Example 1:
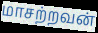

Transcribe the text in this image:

மாசற்றவன்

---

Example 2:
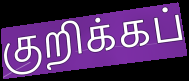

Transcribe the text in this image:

குறிக்கப்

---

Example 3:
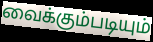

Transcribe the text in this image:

வைக்கும்படியும்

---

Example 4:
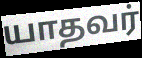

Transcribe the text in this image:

யாதவர்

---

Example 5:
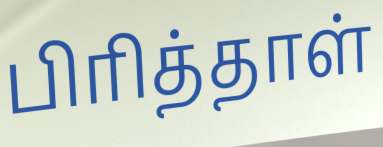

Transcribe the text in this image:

பிரித்தாள்